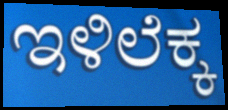
ಇಳಿಲೆಕ್ಕ